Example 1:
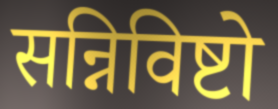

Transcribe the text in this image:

सन्निविष्टो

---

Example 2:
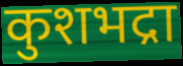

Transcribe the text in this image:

कुशभद्रा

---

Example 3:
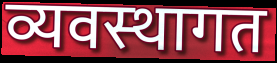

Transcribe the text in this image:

व्यवस्थागत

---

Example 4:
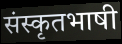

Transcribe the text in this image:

संस्कृतभाषी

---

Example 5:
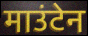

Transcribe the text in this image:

माउंटेन